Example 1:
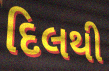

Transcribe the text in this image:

દિલથી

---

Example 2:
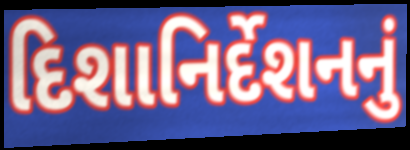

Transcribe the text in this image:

દિશાનિર્દેશનનું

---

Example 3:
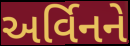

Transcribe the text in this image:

અર્વિનને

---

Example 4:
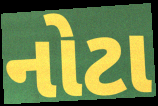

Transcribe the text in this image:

નોટા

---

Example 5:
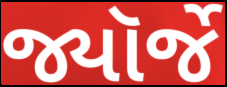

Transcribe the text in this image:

જ્યૉર્જે